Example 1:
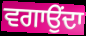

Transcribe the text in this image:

ਵਗਾਉਂਦਾ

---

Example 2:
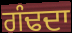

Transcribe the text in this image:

ਗੰਢਦਾ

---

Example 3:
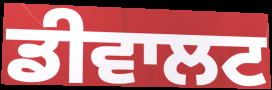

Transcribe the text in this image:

ਡੀਵਾਲਟ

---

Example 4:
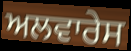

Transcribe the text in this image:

ਅਲਵਾਰੇਸ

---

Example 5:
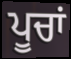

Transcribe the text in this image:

ਪੂਚਾਂ